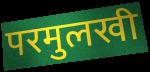
परमुलखी